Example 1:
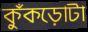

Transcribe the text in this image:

কুঁকড়োটা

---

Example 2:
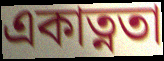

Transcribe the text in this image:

একাত্নতা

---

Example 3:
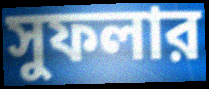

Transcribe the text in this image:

সুফলার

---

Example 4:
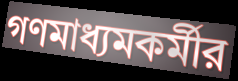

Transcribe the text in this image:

গণমাধ্যমকর্মীর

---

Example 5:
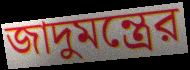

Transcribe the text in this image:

জাদুমন্ত্রের